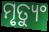
ମୃତ୍ୟୁଂ